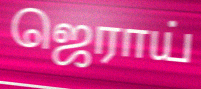
ஜெராய்